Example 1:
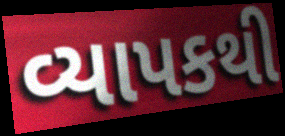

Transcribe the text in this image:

વ્યાપકથી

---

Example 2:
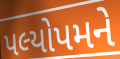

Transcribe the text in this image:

પલ્યોપમને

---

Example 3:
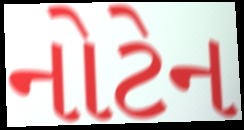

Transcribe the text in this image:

નોટેન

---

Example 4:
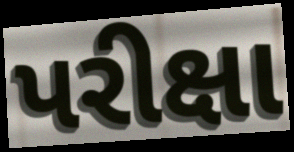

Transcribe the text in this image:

પરીક્ષા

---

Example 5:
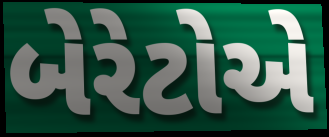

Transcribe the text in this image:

બેરેટોએ